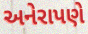
અનેરાપણે